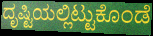
ದೃಷ್ಟಿಯಲ್ಲಿಟ್ಟುಕೊಂಡೆ